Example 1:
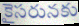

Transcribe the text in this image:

కైసరునకు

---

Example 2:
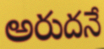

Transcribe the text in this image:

అరుదనే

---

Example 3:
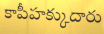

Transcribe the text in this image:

కాపీహక్కుదారు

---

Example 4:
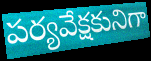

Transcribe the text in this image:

పర్యవేక్షకునిగా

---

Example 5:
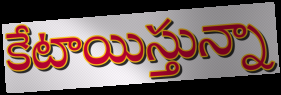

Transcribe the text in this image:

కేటాయిస్తున్నా